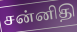
சன்னிதி